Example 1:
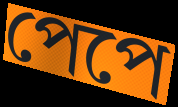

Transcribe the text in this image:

পেপে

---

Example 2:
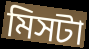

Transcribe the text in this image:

মিসটা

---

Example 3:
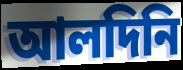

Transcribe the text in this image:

আলদিনি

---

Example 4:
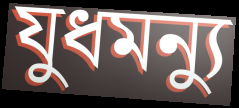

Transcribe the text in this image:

যুধমন্যু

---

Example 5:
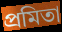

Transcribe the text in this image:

প্রমিতা